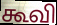
கூவி